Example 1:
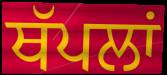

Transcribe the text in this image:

ਥੱਪਲਾਂ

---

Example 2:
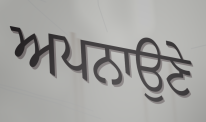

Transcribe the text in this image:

ਅਪਨਾਉਣੇ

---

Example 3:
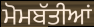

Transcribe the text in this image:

ਮੋਮਬੱਤੀਆਂ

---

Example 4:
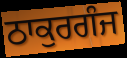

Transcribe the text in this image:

ਠਾਕੁਰਗੰਜ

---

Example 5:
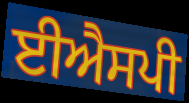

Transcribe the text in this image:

ਈਐਸਪੀ